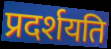
प्रदर्शयति